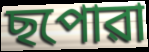
ছপোৱা